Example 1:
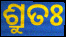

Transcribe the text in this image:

ଶ୍ରୁତଃ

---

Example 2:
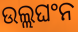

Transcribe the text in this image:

ଉଲ୍ଲଘଂନ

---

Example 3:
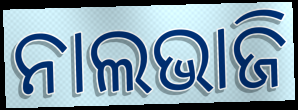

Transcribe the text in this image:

ନାଲଭାଜି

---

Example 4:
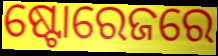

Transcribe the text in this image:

ଷ୍ଟୋରେଜରେ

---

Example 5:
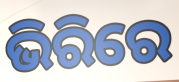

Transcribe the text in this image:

ଭିରିରେ